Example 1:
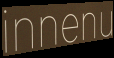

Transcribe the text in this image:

innenu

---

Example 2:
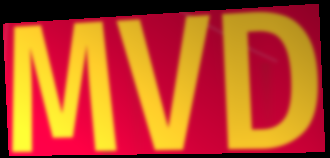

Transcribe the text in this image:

MVD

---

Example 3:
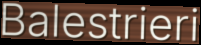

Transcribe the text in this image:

Balestrieri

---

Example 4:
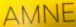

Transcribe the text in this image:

AMNE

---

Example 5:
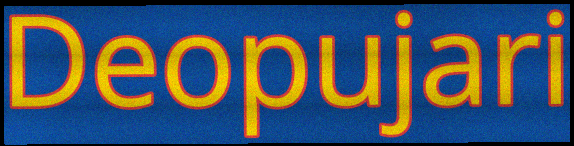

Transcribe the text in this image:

Deopujari